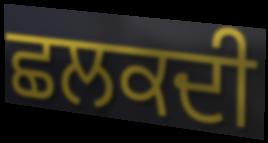
ਛਲਕਦੀ